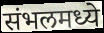
संभलमध्ये